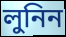
লুনিন